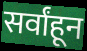
सर्वांहून